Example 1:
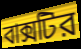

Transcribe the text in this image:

বাক্সটির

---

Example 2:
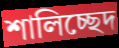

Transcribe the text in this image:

শালিচ্ছেদ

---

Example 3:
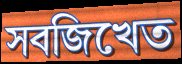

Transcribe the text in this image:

সবজিখেত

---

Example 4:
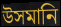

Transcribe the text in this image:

উসমানি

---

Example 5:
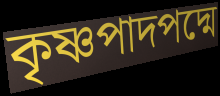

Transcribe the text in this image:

কৃষ্ণপাদপদ্মে